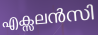
എക്സലൻസി